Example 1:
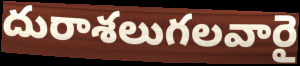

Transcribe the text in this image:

దురాశలుగలవారై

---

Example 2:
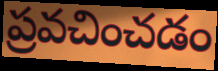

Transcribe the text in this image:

ప్రవచించడం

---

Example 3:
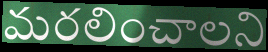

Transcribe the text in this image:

మరలించాలని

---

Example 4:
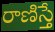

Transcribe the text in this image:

రాణిస్తే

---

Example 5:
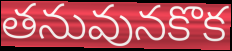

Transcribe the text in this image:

తనువునకొక